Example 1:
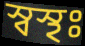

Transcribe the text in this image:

স্বস্থঃ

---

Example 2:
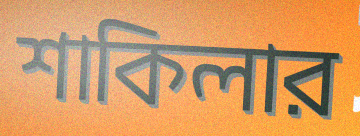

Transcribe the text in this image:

শাকিলার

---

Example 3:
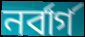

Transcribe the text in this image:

নর্বার্গ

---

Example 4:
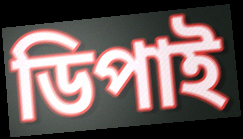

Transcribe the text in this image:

ডিপাই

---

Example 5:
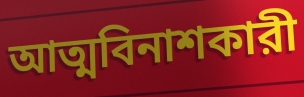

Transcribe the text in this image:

আত্মবিনাশকারী